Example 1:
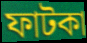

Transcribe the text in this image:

ফাটকা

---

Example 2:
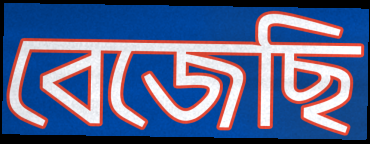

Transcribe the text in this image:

বেজেছি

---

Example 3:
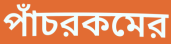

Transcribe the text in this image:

পাঁচরকমের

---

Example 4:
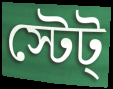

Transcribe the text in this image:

স্টেট্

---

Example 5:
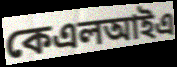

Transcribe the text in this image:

কেএলআইএ